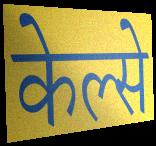
केल्से